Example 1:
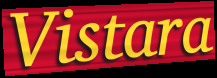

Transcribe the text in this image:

Vistara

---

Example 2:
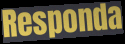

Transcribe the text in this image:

Responda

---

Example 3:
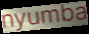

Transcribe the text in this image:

nyumba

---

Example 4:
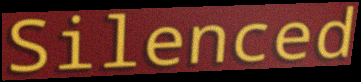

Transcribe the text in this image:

Silenced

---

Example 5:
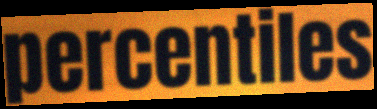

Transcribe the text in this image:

percentiles